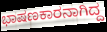
ಭಾಷಣಕಾರನಾಗಿದ್ದ